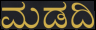
ಮಡದಿ